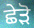
ਛੇੜੋ